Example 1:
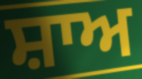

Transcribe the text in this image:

ਸ਼ਾਅ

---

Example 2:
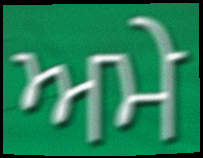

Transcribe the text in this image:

ਅਮੇ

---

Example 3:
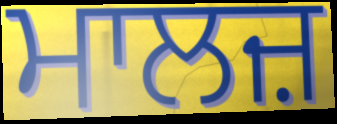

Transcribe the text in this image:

ਮਾਲਜ਼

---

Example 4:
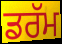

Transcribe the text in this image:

ਡਰੱਮ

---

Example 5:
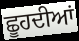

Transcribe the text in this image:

ਛੂਹਦੀਆਂ